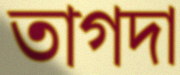
তাগদা